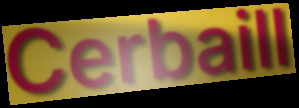
Cerbaill